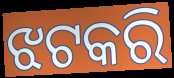
ଝଟକରି